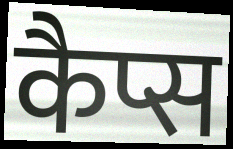
कैप्स